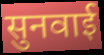
सुनवाई